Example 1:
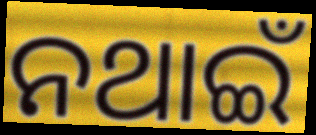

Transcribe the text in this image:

ନଥାଇଁ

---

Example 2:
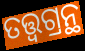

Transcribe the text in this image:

ତତ୍ତ୍ୱଗ୍ରନ୍ଥ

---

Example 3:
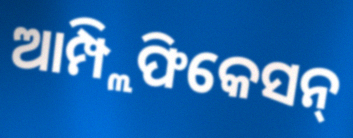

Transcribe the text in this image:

ଆମ୍ପ୍ଲିଫିକେସନ୍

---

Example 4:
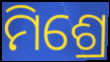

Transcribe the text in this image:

ମିଶ୍ରେ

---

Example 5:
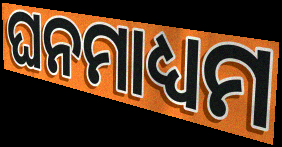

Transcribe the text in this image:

ଘନମାଧ୍ୟମ